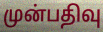
முன்பதிவு